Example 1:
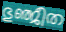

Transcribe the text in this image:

ഭുഞ്ജീത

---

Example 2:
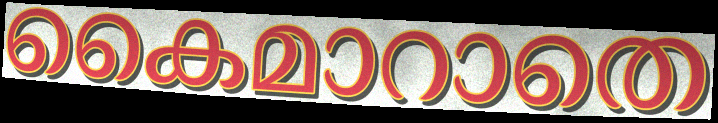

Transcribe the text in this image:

കൈമാറാതെ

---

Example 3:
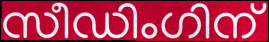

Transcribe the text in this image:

സീഡിംഗിന്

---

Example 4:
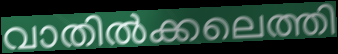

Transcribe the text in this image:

വാതിൽക്കലെത്തി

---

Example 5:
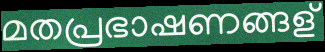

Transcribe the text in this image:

മതപ്രഭാഷണങ്ങള്